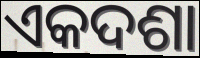
ଏକଦଶା